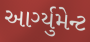
આર્ગ્યુમેન્ટ